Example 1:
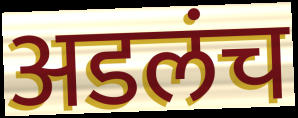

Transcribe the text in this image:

अडलंच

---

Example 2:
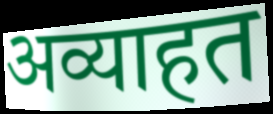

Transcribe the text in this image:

अव्याहत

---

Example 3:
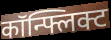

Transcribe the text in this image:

कॉन्फ्लिक्ट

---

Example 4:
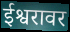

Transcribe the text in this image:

ईश्वरावर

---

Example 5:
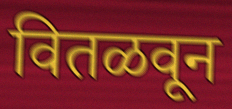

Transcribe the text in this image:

वितळवून